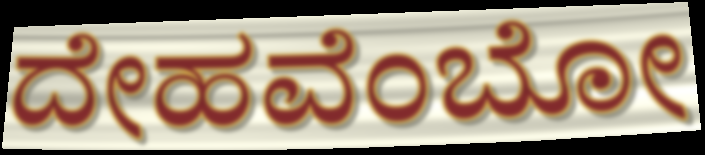
ದೇಹವೆಂಬೋ